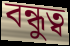
বন্ধুত্ব